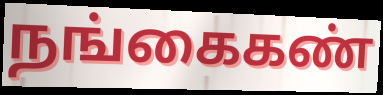
நங்கைகண்